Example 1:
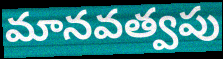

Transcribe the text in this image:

మానవత్వపు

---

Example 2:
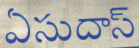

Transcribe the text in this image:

ఏసుదాస్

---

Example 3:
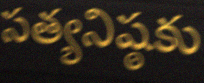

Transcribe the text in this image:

సత్యనిష్ఠకు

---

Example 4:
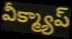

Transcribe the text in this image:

వీక్మ్యాప్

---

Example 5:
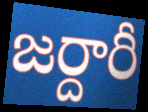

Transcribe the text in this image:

జర్దారీ